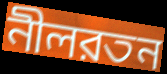
নীলরতন